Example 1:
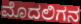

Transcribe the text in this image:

ಮೊದಲಿಗನ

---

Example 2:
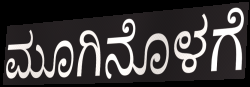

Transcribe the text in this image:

ಮೂಗಿನೊಳಗೆ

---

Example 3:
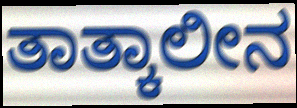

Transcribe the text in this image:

ತಾತ್ಕಾಲೀನ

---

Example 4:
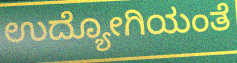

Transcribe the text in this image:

ಉದ್ಯೋಗಿಯಂತೆ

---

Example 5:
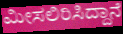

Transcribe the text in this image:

ಮೀಸಲಿರಿಸಿದ್ದಾನೆ